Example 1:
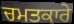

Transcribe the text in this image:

ਚਮਤਕਾਰੇ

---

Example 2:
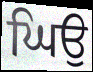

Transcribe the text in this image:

ਘਿਉ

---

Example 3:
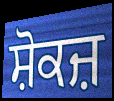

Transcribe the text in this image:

ਸ਼ੋਕਜ਼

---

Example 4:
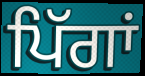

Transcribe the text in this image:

ਪਿੱਗਾਂ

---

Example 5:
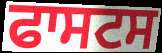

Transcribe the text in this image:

ਫਾਸਟਸ